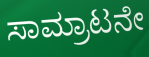
ಸಾಮ್ರಾಟನೇ